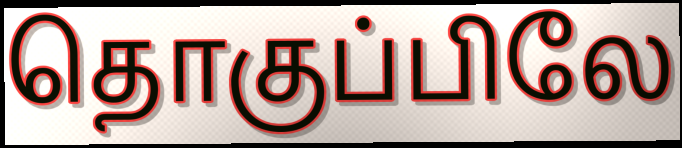
தொகுப்பிலே